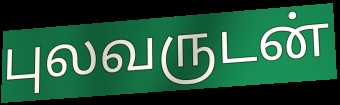
புலவருடன்